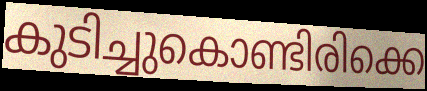
കുടിച്ചുകൊണ്ടിരിക്കെ